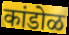
कांडोळ